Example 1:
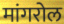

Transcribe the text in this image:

मांगरोल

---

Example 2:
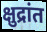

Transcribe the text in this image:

क्षुद्रांत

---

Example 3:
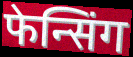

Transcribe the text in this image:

फेन्सिंग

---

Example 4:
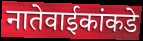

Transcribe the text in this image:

नातेवाईकांकडे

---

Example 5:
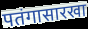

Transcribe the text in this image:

पतंगासारखा